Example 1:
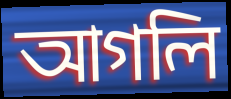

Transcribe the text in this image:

আগলি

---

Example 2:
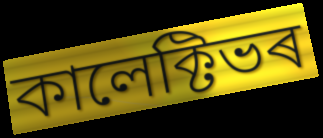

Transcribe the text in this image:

কালেক্টিভৰ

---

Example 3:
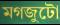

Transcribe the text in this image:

মগজুটো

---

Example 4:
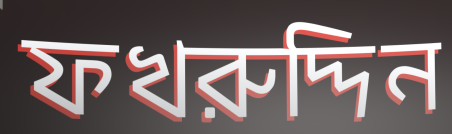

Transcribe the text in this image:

ফখৰুদ্দিন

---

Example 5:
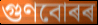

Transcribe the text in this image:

গুণবোৰৰ